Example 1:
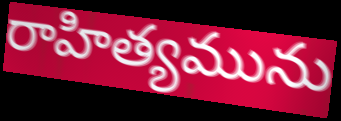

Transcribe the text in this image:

రాహిత్యమును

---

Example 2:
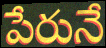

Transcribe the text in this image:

పేరునే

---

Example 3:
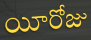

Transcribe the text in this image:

యీరోజు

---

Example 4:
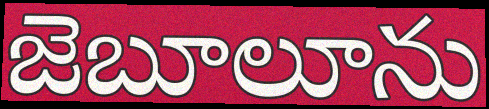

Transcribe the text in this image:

జెబూలూను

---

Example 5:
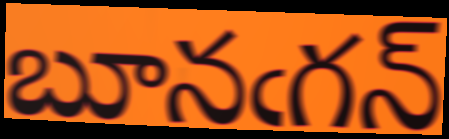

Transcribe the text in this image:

బూనఁగన్